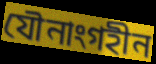
যৌনাংগহীন